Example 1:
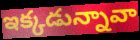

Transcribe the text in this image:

ఇక్కడున్నావా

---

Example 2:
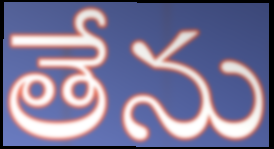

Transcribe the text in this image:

తేను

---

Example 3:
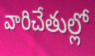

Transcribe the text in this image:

వారిచేతుల్లో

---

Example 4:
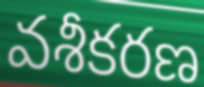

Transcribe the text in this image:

వశీకరణ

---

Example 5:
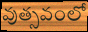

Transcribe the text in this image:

వుత్సవంలో